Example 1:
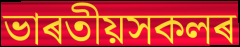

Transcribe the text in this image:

ভাৰতীয়সকলৰ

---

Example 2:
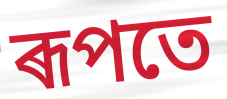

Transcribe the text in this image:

ৰূপতে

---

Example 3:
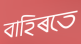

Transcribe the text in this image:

বাহিৰতে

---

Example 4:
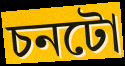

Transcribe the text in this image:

চনটো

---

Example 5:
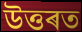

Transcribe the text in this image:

উত্তৰত